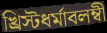
খ্রিস্টধর্মাবলম্বী